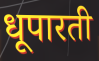
धूपारती